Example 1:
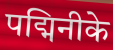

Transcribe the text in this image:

पद्मिनीके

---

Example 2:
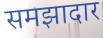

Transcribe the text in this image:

समझादार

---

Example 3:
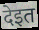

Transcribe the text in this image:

देइत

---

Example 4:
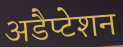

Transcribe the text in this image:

अडैप्टेशन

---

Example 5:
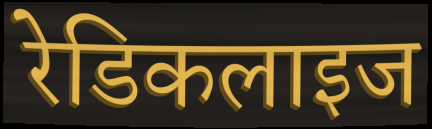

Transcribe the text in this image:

रेडिकलाइज